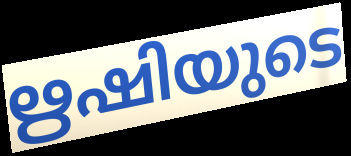
ഋഷിയുടെ